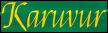
Karuvur